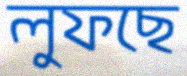
লুফছে